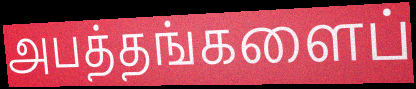
அபத்தங்களைப்